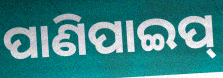
ପାଣିପାଇପ୍